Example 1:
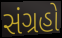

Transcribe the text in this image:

સંગ્રહો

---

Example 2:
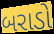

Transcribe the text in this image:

બરાડો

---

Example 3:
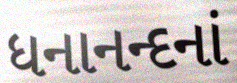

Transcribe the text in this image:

ધનાનન્દનાં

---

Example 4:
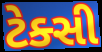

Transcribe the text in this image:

ટેક્સી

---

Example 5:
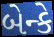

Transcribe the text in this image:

બેન્કે